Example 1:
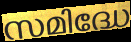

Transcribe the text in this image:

സമിദ്ധേ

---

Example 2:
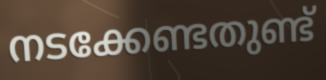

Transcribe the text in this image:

നടക്കേണ്ടതുണ്ട്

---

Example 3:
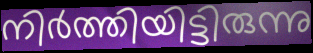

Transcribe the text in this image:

നിർത്തിയിട്ടിരുന്നു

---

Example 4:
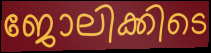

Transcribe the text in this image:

ജോലിക്കിടെ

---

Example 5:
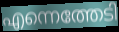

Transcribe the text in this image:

എന്നെത്തേടി